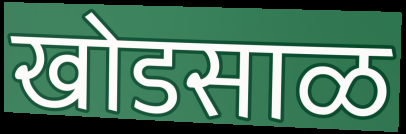
खोडसाळ